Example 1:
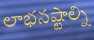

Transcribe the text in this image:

లాభనష్టాల్ని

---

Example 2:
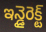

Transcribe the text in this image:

ఇన్డైరెక్ట్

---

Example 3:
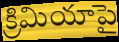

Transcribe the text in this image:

క్రిమియాపై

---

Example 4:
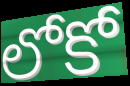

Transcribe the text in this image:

లోకో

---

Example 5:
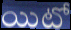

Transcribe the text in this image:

యిటో